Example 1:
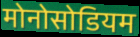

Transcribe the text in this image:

मोनोसोडियम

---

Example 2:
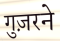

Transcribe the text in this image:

गुज़रने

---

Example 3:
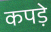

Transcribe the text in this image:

कपड़े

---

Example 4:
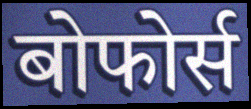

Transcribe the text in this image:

बोफोर्स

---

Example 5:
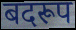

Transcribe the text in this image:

बदरूप